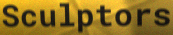
Sculptors